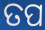
ତପ